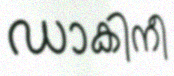
ഡാകിനീ